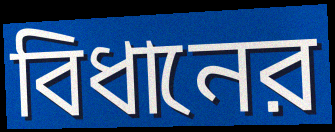
বিধানের